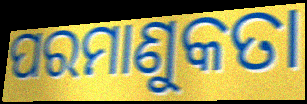
ପରମାଣୁକତା